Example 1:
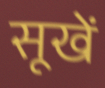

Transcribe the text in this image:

सूखें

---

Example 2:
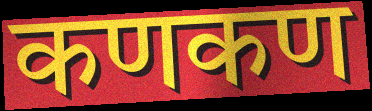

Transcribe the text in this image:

कणकण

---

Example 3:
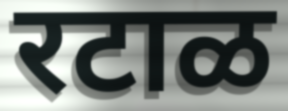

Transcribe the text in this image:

रटाळ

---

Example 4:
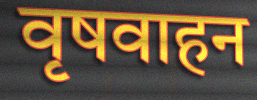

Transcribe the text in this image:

वृषवाहन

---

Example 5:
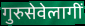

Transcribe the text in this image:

गुरुसेवेलागीं